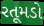
રતૂમડો